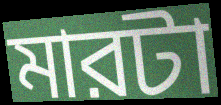
মারটা